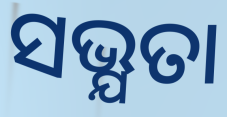
ସଭ୍ଯତା